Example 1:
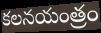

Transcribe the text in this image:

కలనయంత్రం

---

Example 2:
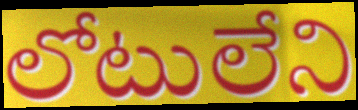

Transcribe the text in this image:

లోటులేని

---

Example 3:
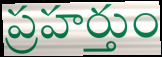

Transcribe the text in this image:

ప్రహర్తుం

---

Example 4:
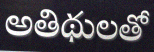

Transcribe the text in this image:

అతిథులతో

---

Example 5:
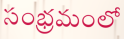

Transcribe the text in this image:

సంభ్రమంలో